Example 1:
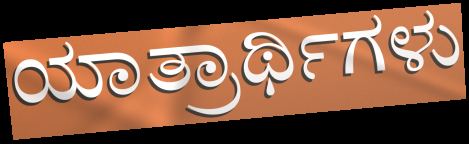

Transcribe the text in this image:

ಯಾತ್ರಾರ್ಥಿಗಳು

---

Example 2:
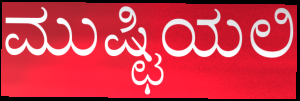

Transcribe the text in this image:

ಮುಷ್ಟಿಯಲಿ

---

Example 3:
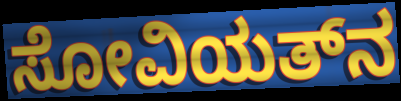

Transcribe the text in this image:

ಸೋವಿಯತ್‌ನ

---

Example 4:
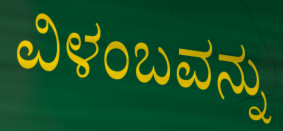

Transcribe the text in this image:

ವಿಳಂಬವನ್ನು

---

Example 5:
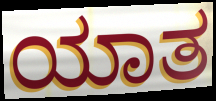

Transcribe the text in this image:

ಯಾತ